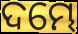
ଦମ୍ଭେ